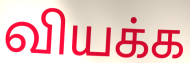
வியக்க